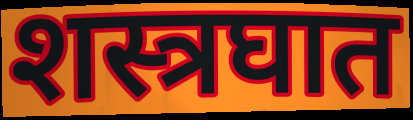
शस्त्रघात